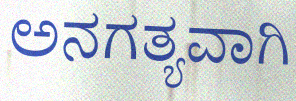
ಅನಗತ್ಯವಾಗಿ